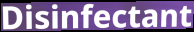
Disinfectant